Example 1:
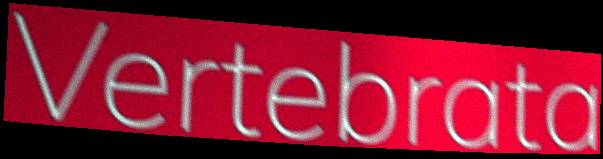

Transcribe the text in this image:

Vertebrata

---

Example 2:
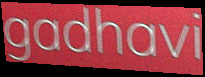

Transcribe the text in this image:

gadhavi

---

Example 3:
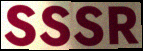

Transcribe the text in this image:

SSSR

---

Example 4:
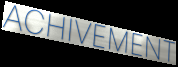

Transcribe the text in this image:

ACHIVEMENT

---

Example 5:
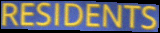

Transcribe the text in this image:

RESIDENTS